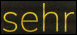
sehr